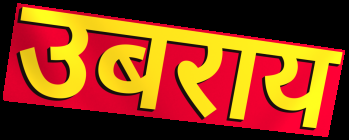
उबराय